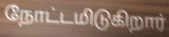
நோட்டமிடுகிறார்